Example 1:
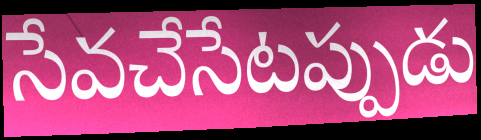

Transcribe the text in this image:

సేవచేసేటప్పుడు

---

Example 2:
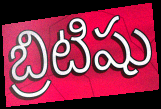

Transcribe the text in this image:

బ్రిటిషు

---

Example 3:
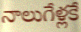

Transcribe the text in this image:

నాలుగేళ్లకే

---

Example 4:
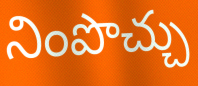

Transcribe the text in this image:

నింపొచ్చు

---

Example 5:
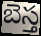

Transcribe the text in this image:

బెస్త